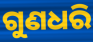
ଗୁଣଧରି